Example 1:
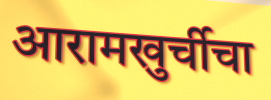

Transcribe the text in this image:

आरामखुर्चीचा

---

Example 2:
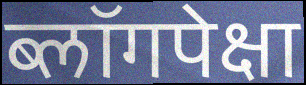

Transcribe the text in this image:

ब्लॉगपेक्षा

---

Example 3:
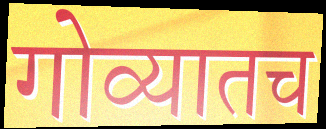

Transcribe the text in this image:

गोव्यातच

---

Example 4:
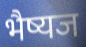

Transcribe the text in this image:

भैष्यज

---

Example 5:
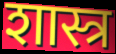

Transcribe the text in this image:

शास्त्र